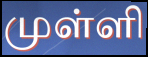
முள்ளி